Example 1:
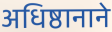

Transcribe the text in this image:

अधिष्ठानाने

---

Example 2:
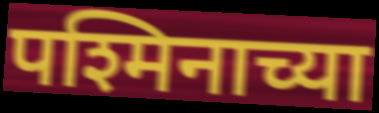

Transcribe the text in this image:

पश्मिनाच्या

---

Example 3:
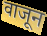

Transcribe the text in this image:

वाजून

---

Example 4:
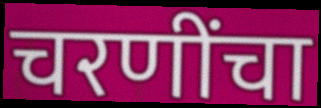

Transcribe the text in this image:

चरणींचा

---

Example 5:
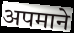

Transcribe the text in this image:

अपमाने